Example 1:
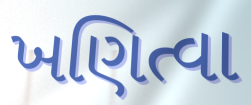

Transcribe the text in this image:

ખણિત્વા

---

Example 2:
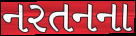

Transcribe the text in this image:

નરતનના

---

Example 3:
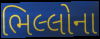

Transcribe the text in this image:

ભિલ્લોના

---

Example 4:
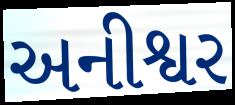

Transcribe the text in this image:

અનીશ્વર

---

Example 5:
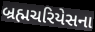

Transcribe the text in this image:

બ્રહ્મચરિયેસના